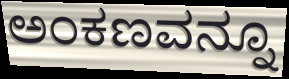
ಅಂಕಣವನ್ನೂ